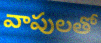
వాపులతో